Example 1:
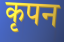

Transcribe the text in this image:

कृपन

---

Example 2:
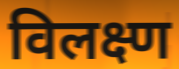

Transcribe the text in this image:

विलक्ष्ण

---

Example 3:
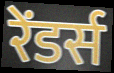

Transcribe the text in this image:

रेंडर्स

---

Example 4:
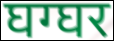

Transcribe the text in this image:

घग्घर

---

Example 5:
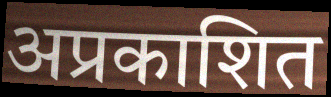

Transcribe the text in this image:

अप्रकाशित